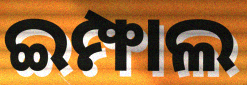
ଇମ୍ଫାଲ